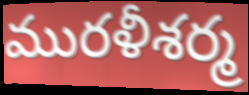
మురళీశర్మ